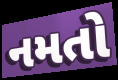
નમતો